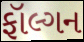
ફૉલ્ગન